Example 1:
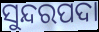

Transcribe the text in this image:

ସୁନ୍ଦରପଦା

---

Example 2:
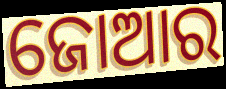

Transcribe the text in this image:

ଜୋଆର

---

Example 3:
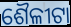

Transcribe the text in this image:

ଶୈଳୀଟା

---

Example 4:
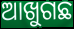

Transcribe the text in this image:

ଆଖୁଗଛ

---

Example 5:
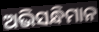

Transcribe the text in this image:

ଅଭିସନ୍ଧିମାନ